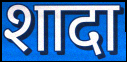
शादा